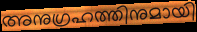
അനുഗ്രഹത്തിനുമായി